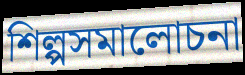
শিল্পসমালোচনা